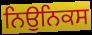
ਨਿਉਨਿਕਸ